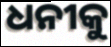
ଧନୀକୁ